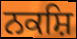
ਨਕਸ਼ਿ